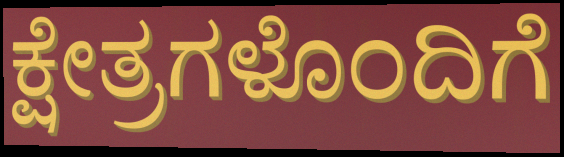
ಕ್ಷೇತ್ರಗಳೊಂದಿಗೆ